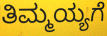
ತಿಮ್ಮಯ್ಯಗೆ